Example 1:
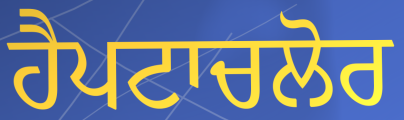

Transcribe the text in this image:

ਹੈਪਟਾਚਲੋਰ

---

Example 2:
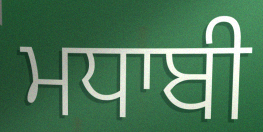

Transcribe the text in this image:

ਮਧਾਬੀ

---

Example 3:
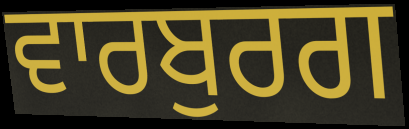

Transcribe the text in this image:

ਵਾਰਬੁਰਗ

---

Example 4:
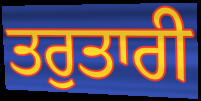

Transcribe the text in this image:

ਤਰੁਤਾਰੀ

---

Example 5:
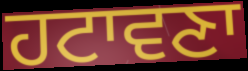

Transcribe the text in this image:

ਹਟਾਵਣਾ